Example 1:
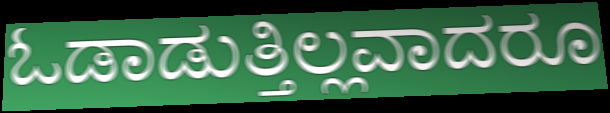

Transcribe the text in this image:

ಓಡಾಡುತ್ತಿಲ್ಲವಾದರೂ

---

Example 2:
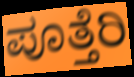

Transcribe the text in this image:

ಪೂತ್ತೆರಿ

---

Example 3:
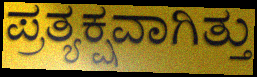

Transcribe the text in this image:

ಪ್ರತ್ಯಕ್ಷವಾಗಿತ್ತು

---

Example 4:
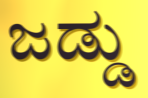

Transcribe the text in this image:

ಜಡ್ಡು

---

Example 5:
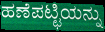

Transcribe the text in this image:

ಹಣೆಪಟ್ಟಿಯನ್ನು